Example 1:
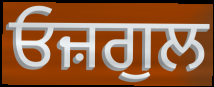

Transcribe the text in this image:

ਓਜ਼ਗੁਲ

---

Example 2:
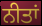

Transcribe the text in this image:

ਨੀਤਾਂ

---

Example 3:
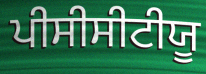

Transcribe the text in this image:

ਪੀਸੀਸੀਟੀਯੂ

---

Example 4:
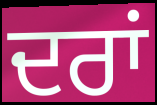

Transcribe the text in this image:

ਦਰਾਂ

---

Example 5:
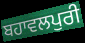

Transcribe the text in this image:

ਬਹਾਵਲਪੁਰੀ